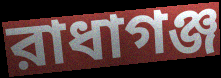
রাধাগঞ্জ